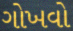
ગોખવો